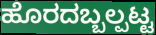
ಹೊರದಬ್ಬಲ್ಪಟ್ಟ